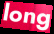
long